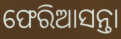
ଫେରିଆସନ୍ତା